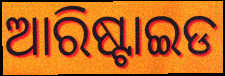
ଆରିଷ୍ଟାଇଡ